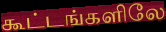
கூட்டங்களிலே